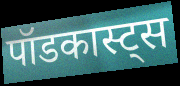
पॉडकास्ट्स